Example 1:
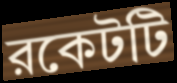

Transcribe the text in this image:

রকেটটি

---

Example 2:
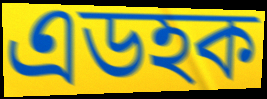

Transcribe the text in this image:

এডহক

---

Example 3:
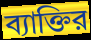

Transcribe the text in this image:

ব্যাক্তির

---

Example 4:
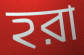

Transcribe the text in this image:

হরা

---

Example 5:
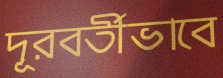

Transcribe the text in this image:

দূরবর্তীভাবে